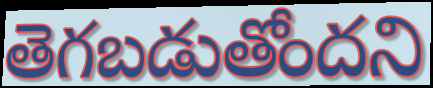
తెగబడుతోందని